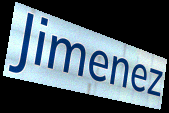
Jimenez